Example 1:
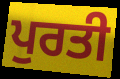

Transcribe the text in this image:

ਪੁਰਤੀ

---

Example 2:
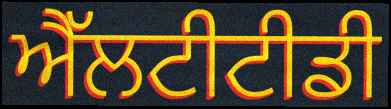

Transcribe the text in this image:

ਐੱਲਟੀਟੀਡੀ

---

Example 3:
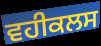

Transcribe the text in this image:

ਵਹੀਕਲਸ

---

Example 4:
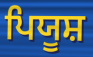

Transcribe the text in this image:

ਪਿਯੂਸ਼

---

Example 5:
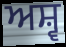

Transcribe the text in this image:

ਅਸ਼੍ਵ